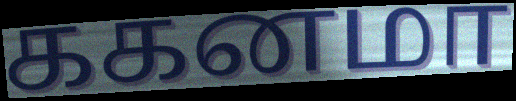
ககனமா